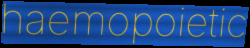
haemopoietic